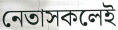
নেতাসকলেই